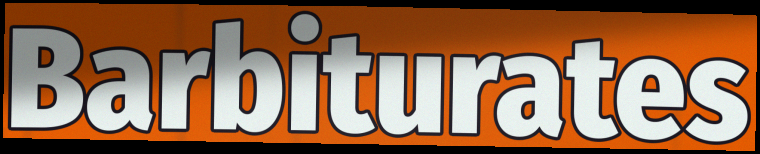
Barbiturates